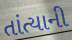
તાંત્યાની